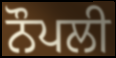
ਨੌਪਲੀ